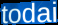
todai